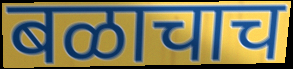
बळाचाच